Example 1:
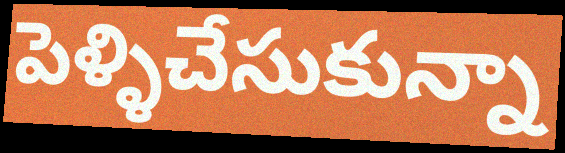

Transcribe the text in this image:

పెళ్ళిచేసుకున్నా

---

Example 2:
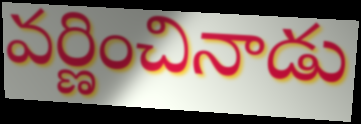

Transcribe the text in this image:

వర్ణించినాడు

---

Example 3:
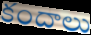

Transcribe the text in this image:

కందాలు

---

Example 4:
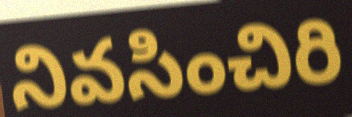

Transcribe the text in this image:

నివసించిరి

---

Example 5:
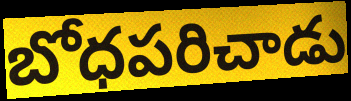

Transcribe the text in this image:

బోధపరిచాడు